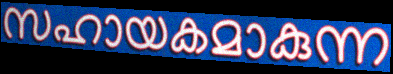
സഹായകമാകുന്ന